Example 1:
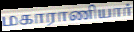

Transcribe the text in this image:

மகாராணியார்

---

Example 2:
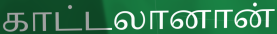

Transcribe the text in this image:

காட்டலானான்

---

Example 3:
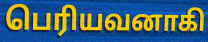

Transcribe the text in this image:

பெரியவனாகி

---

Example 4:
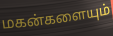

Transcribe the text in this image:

மகன்களையும்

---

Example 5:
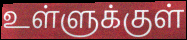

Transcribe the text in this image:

உள்ளுக்குள்